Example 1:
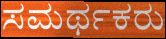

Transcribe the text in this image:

ಸಮರ್ಥಕರು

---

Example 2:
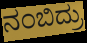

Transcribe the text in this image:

ನಂಬಿದ್ರು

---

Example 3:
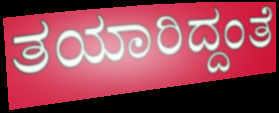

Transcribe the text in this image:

ತಯಾರಿದ್ದಂತೆ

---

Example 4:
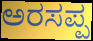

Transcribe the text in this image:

ಅರಸಪ್ಪ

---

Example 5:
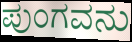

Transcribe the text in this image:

ಪುಂಗವನು